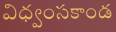
విధ్వంసకాండ